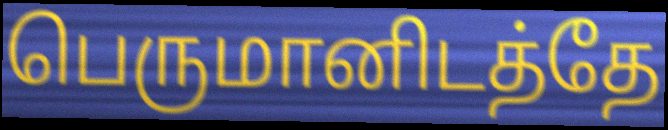
பெருமானிடத்தே